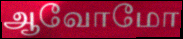
ஆவோமோ